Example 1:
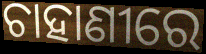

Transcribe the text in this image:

ଚାହାଣୀରେ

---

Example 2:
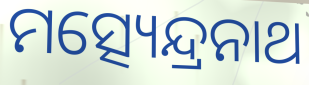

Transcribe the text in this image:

ମତ୍ସ୍ୟେନ୍ଦ୍ରନାଥ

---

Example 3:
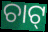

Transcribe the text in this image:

ଚାଟ୍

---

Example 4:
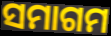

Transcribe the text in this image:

ସମାଗମ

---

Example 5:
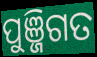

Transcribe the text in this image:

ପୁଞ୍ଜିଗତ